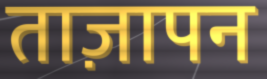
ताज़ापन